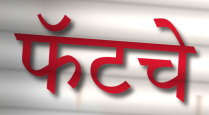
फॅटचे